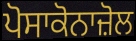
ਪੋਸਾਕੋਨਾਜ਼ੋਲ